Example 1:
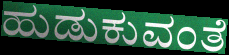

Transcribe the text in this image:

ಹುಡುಕುವಂತೆ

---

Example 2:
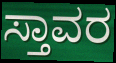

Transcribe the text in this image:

ಸ್ತಾವರ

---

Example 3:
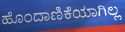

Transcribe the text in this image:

ಹೊಂದಾಣಿಕೆಯಾಗಿಲ್ಲ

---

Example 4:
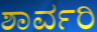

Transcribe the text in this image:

ಶಾರ್ವರಿ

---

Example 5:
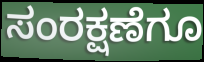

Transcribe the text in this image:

ಸಂರಕ್ಷಣೆಗೂ